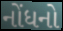
નોંધનો